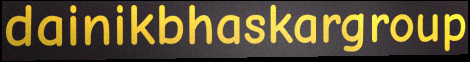
dainikbhaskargroup